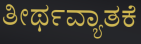
ತೀರ್ಥವ್ಯಾತಕೆ